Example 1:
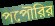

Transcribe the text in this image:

পপৌরির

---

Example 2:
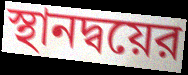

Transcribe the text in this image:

স্থানদ্বয়ের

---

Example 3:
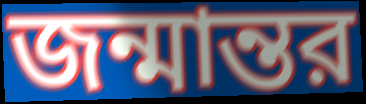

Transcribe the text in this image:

জন্মান্তর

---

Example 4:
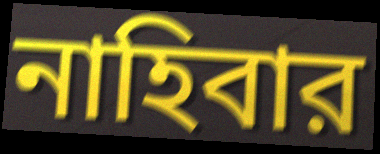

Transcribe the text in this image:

নাহিবার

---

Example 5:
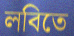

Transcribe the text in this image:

লবিতে